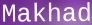
Makhad